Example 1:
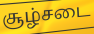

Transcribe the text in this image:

சூழ்சடை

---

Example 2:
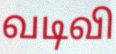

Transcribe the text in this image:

வடிவி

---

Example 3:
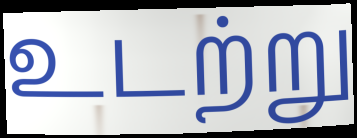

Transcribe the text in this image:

உடற்று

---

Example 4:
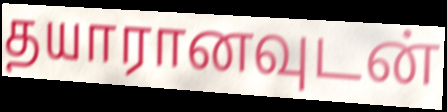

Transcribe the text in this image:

தயாரானவுடன்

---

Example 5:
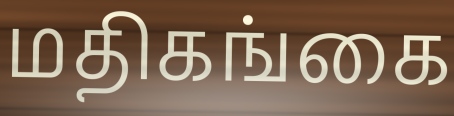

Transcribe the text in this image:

மதிகங்கை